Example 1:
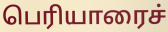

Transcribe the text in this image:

பெரியாரைச்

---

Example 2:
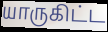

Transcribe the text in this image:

யாருகிட்ட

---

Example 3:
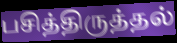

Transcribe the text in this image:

பசித்திருத்தல்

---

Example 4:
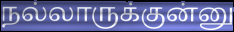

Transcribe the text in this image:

நல்லாருக்குன்னு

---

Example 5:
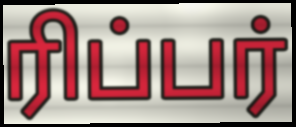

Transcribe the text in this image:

ரிப்பர்